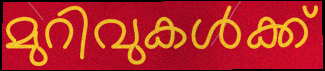
മുറിവുകൾക്ക്